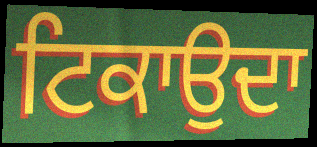
ਟਿਕਾਉਦਾ